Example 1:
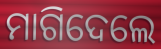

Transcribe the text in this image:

ମାଗିଦେଲେ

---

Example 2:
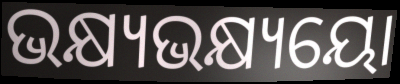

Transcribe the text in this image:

ଭକ୍ଷ୍ୟଭକ୍ଷ୍ୟୟୋ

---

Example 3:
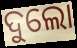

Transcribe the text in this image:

ଦୁଲୋ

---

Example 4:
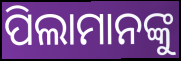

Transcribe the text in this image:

ପିଲାମାନଙ୍କୁ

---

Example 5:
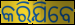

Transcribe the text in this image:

କରିଯିବେ